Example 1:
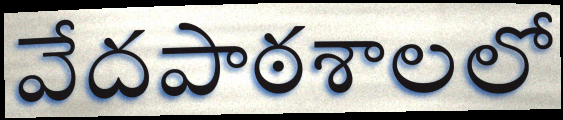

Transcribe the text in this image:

వేదపాఠశాలలో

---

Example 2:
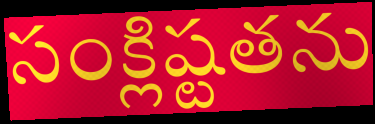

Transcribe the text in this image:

సంక్లిష్టతను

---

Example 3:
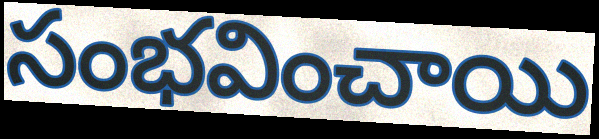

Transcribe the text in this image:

సంభవించాయి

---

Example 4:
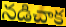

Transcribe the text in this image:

నడిచాక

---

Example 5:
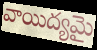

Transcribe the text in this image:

వాయిద్యమై